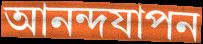
আনন্দযাপন